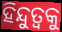
ହିନ୍ଦୁତ୍ୱକୁ